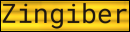
Zingiber